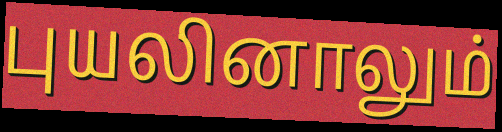
புயலினாலும்